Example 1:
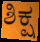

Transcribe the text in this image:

ಶಿಕ್ಷ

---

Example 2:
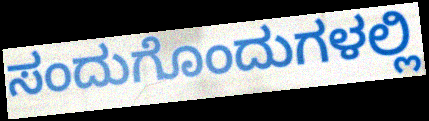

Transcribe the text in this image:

ಸಂದುಗೊಂದುಗಳಲ್ಲಿ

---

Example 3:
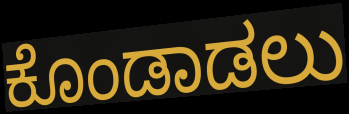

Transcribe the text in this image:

ಕೊಂಡಾಡಲು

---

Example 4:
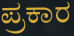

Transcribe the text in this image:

ಪ್ರಕಾರ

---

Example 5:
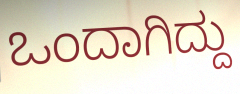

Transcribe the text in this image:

ಒಂದಾಗಿದ್ದು